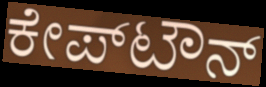
ಕೇಪ್‌ಟೌನ್